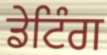
ਡੇਟਿੰਗ